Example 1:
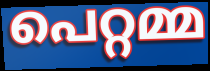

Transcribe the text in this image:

പെറ്റമ്മ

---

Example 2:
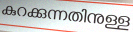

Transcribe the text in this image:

കുറക്കുന്നതിനുള്ള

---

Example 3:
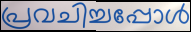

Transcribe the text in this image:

പ്രവചിച്ചപ്പോൾ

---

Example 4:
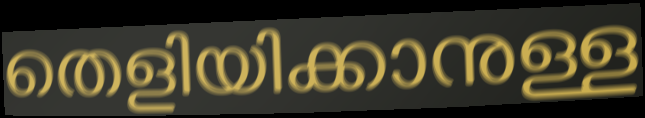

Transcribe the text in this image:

തെളിയിക്കാനുള്ള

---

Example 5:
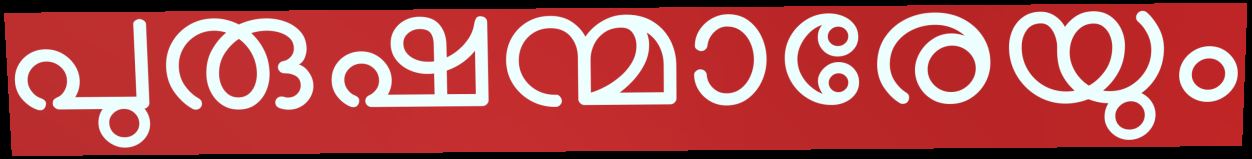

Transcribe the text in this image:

പുരുഷന്മാരേയും